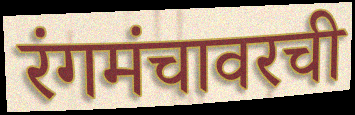
रंगमंचावरची